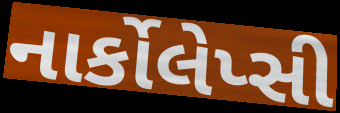
નાર્કોલેપ્સી